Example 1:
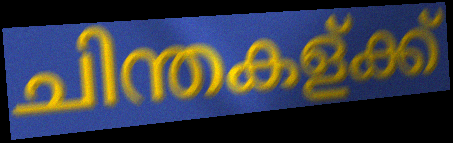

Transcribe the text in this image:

ചിന്തകള്ക്ക്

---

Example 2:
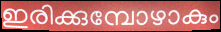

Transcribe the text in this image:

ഇരിക്കുമ്പോഴാകും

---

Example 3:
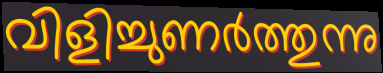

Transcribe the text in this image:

വിളിച്ചുണർത്തുന്നു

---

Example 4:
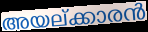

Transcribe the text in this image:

അയല്ക്കാരൻ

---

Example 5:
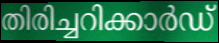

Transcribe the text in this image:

തിരിച്ചറിക്കാർഡ്